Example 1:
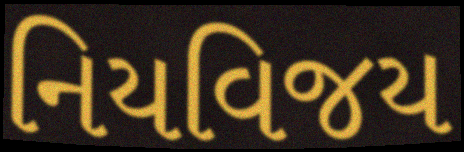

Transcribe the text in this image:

નિયવિજય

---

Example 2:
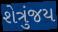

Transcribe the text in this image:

શેત્રુંજય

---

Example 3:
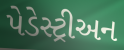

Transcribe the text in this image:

પેડેસ્ટ્રીઅન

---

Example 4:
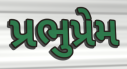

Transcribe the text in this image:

પ્રભુપ્રેમ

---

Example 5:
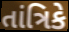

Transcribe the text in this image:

તાંત્રિકે